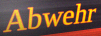
Abwehr